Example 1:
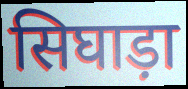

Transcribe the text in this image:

सिघाड़ा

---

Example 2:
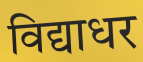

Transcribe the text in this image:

विद्याधर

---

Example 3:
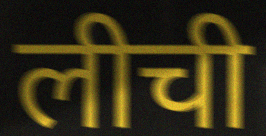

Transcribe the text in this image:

लीची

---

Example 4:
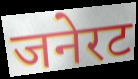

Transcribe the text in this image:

जनेरट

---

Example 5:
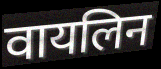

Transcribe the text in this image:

वायलिन